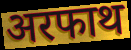
अरफाथ